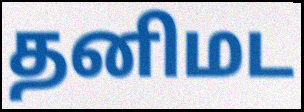
தனிமட